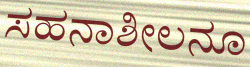
ಸಹನಾಶೀಲನೂ